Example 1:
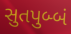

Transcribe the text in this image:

સુતપુબ્બં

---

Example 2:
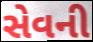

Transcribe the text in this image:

સેવની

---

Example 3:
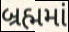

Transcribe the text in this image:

બ્રહ્મમાં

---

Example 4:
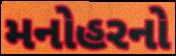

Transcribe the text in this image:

મનોહરનો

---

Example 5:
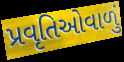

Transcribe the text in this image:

પ્રવૃતિઓવાળું